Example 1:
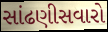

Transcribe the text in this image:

સાંઢણીસવારો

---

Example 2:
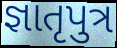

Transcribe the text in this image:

જ્ઞાતૃપુત્ર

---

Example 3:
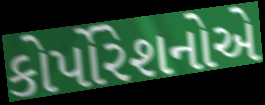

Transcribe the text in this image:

કોર્પોરેશનોએ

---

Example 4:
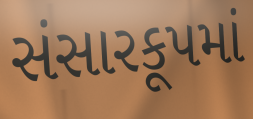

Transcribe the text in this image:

સંસારકૂપમાં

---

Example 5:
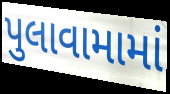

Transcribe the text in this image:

પુલાવામામાં